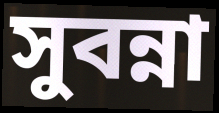
সুবন্না